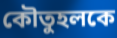
কৌতুহলকে